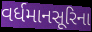
વર્ધમાનસૂરિના